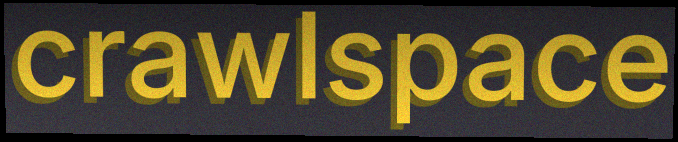
crawlspace